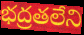
భద్రతలేని